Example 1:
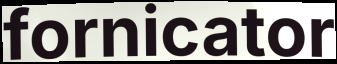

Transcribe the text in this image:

fornicator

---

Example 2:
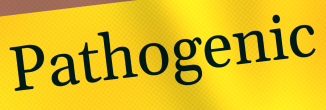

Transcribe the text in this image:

Pathogenic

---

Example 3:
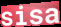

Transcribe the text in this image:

sisa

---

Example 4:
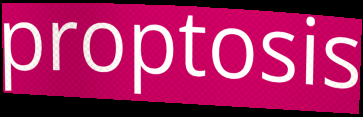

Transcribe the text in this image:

proptosis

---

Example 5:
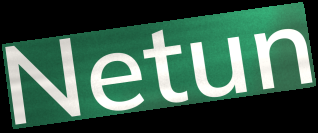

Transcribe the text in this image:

Netun